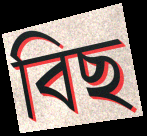
বিছ